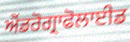
ਐਂਡਰੋਗ੍ਰਾਫੋਲਾਈਡ